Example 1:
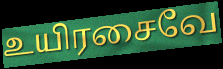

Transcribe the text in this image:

உயிரசைவே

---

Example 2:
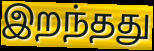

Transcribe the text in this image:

இறந்தது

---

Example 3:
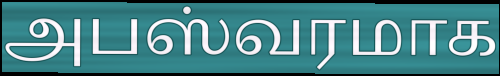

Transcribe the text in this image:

அபஸ்வரமாக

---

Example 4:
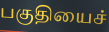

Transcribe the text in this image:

பகுதியைச்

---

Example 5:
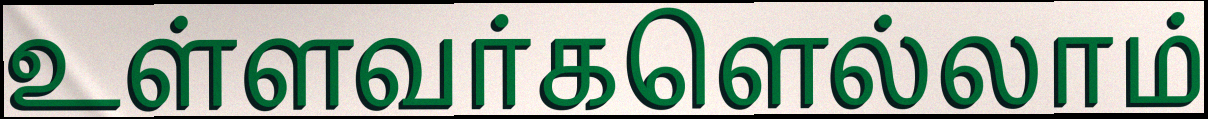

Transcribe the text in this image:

உள்ளவர்களெல்லாம்